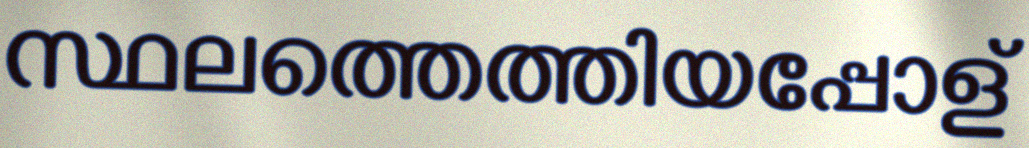
സ്ഥലത്തെത്തിയപ്പോള്